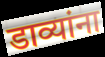
डाव्यांना